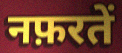
नफ़रतें